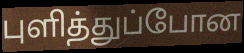
புளித்துப்போன